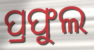
ପ୍ରଫୁଲ